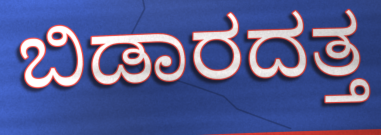
ಬಿಡಾರದತ್ತ